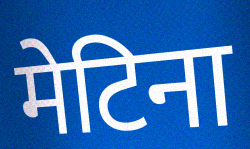
मेटिना